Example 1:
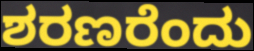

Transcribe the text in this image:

ಶರಣರೆಂದು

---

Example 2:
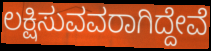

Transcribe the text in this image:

ಲಕ್ಷಿಸುವವರಾಗಿದ್ದೇವೆ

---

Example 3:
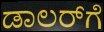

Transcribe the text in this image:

ಡಾಲರ್‌ಗೆ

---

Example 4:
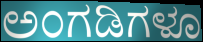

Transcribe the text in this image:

ಅಂಗಡಿಗಳೂ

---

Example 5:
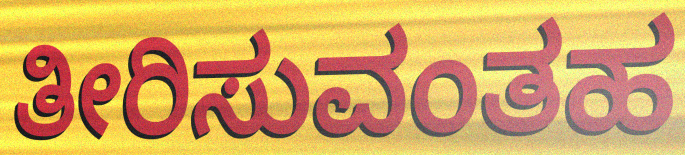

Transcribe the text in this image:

ತೀರಿಸುವಂತಹ